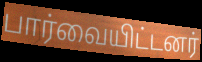
பார்வையிட்டனர்